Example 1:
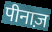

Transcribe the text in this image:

पीनाज़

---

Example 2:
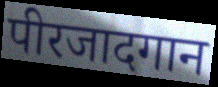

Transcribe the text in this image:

पीरजादगान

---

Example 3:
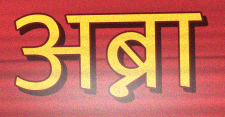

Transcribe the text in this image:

अब्ना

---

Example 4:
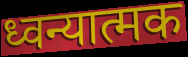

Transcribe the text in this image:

ध्वन्यात्मक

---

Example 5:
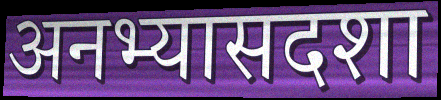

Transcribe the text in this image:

अनभ्यासदशा